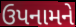
ઉપનામને